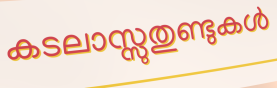
കടലാസ്സുതുണ്ടുകൾ